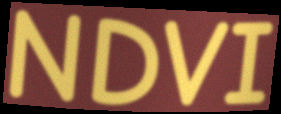
NDVI